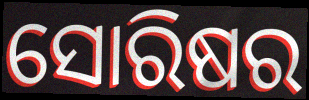
ସୋରିଷର